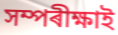
সম্পৰীক্ষাই